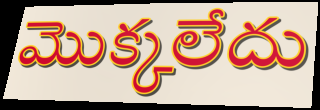
మొక్కలేదు